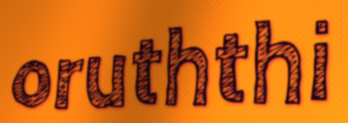
oruththi